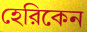
হেরিকেন